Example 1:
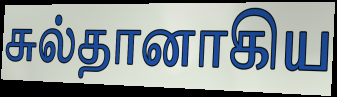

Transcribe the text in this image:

சுல்தானாகிய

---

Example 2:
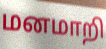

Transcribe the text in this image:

மனமாறி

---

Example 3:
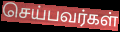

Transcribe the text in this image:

செய்பவர்கள்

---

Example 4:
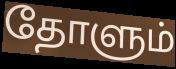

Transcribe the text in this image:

தோளும்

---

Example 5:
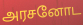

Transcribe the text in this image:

அரசனோட